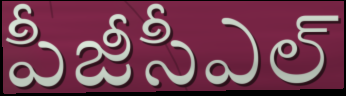
పీజీసీఎల్